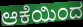
ಆಕೆಯಿಂದ